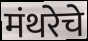
मंथरेचे